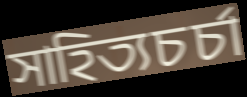
সাহিত্যচর্চা